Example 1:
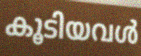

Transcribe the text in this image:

കൂടിയവൾ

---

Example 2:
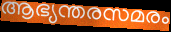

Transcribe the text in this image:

ആഭ്യന്തരസമരം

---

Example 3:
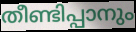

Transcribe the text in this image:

തീണ്ടിപ്പാനും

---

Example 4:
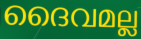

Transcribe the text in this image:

ദൈവമല്ല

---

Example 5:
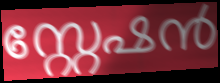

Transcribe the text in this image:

സ്റ്റേഷൻ